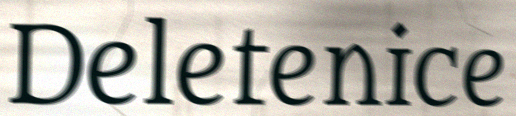
Deletenice